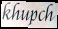
khupch